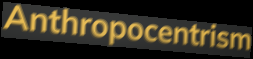
Anthropocentrism